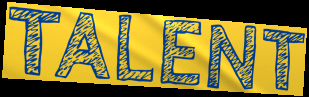
TALENT